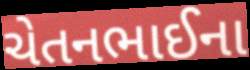
ચેતનભાઈના